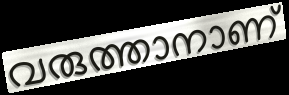
വരുത്താനാണ്